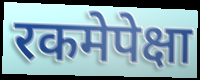
रकमेपेक्षा